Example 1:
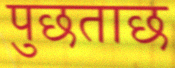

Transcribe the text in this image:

पुछताछ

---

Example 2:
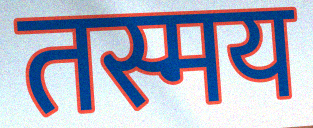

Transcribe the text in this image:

तस्मय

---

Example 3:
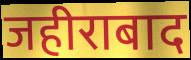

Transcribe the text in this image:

जहीराबाद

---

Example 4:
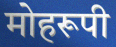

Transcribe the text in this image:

मोहरूपी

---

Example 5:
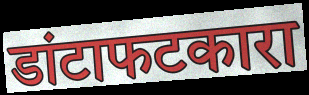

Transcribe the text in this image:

डांटाफटकारा